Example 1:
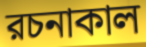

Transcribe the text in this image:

রচনাকাল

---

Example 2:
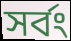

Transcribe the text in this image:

সর্বং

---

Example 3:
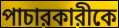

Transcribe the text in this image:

পাচারকারীকে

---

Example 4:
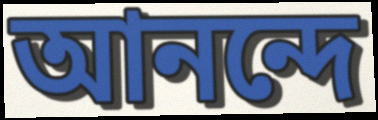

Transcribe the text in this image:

আনন্দে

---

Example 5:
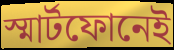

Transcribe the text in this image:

স্মার্টফোনেই